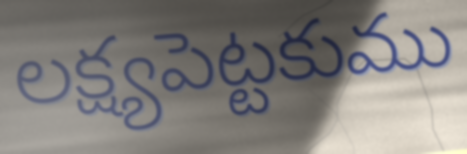
లక్ష్యపెట్టకుము